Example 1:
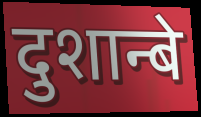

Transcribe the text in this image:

दुशान्बे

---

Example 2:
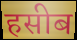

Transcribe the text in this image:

हसीब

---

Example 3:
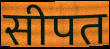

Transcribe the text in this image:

सीपत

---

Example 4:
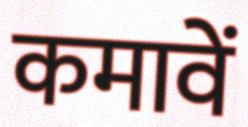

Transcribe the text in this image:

कमावें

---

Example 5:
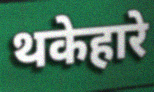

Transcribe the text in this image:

थकेहारे